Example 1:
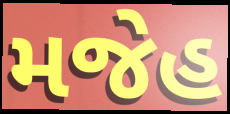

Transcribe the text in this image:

મજેહ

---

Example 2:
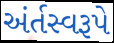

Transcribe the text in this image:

અંર્તસ્વરૂપે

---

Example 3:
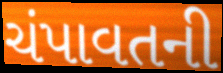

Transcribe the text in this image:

ચંપાવતની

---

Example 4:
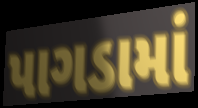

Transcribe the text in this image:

પાગડામાં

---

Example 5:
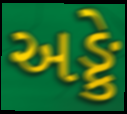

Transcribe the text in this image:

અઙ્કે